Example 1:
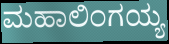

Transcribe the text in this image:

ಮಹಾಲಿಂಗಯ್ಯ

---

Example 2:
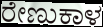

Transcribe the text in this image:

ರೇಣುಕಾಳ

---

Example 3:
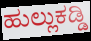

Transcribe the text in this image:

ಹುಲ್ಲುಕಡ್ಡಿ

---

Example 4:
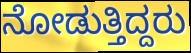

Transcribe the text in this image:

ನೋಡುತ್ತಿದ್ದರು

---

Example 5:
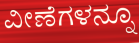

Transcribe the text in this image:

ವೀಣೆಗಳನ್ನೂ